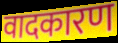
वादकारण